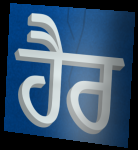
ਹੈਰ